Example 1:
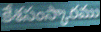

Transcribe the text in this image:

కేశసంస్కారము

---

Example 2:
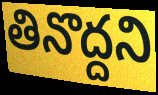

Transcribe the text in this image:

తినొద్దని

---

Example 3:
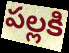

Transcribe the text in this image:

పల్లకి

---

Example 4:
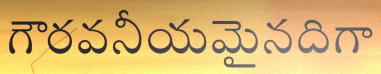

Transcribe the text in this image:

గౌరవనీయమైనదిగా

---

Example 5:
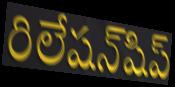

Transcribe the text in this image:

రిలేషన్‌షిప్